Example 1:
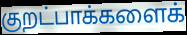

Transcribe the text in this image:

குறட்பாக்களைக்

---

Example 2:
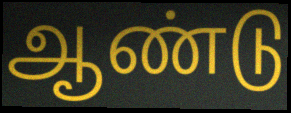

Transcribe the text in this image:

ஆண்டு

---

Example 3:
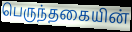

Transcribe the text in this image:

பெருந்தகையின்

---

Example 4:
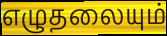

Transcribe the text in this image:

எழுதலையும்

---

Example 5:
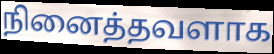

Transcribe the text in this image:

நினைத்தவளாக